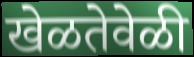
खेळतेवेळी